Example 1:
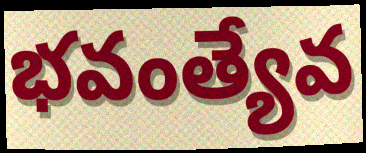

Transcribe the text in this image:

భవంత్యేవ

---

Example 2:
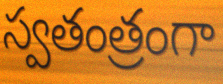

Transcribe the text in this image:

స్వతంత్రంగా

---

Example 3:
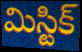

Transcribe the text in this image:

మిస్టిక్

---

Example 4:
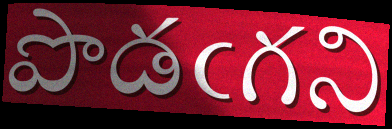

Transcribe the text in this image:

పొడఁగని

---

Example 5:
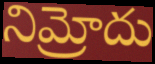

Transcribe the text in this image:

నిమ్రోదు